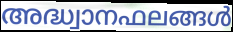
അദ്ധ്വാനഫലങ്ങൾ